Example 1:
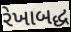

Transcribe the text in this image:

રેખાબદ્ધ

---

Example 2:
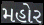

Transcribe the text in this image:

મહોર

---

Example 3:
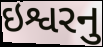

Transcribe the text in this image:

ઇશ્વરનુ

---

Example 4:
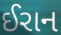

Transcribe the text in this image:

ઈરાન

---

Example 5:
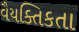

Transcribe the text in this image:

વૈયક્તિકતા